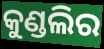
କୁଣ୍ଡଲିର